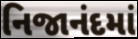
નિજાનંદમાં